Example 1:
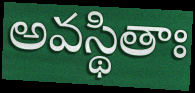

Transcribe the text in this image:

అవస్థితాః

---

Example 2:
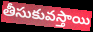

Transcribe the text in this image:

తీసుకువస్తాయి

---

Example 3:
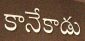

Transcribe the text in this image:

కానేకాడు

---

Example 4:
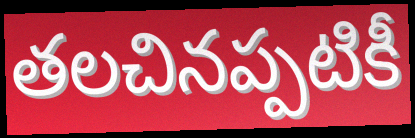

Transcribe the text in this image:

తలచినప్పటికీ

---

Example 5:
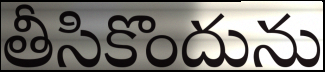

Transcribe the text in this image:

తీసికొందును